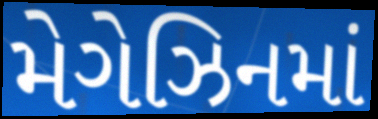
મેગેઝિનમાં